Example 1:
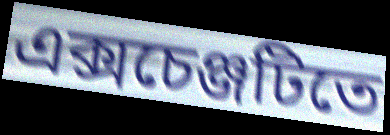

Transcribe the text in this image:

এক্সচেঞ্জটিতে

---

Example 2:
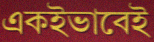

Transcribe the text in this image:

একইভাবেই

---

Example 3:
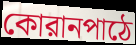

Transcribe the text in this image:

কোরানপাঠে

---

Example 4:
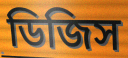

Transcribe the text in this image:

ডিজিস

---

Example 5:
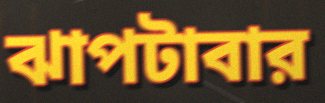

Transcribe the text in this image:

ঝাপটাবার